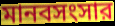
মানবসংসার